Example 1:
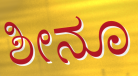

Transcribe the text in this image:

ಶೀನೂ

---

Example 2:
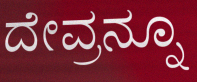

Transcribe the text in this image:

ದೇವ್ರನ್ನೂ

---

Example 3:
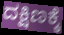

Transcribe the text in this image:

ದಕ್ಷಿಣಕ್ಕೆ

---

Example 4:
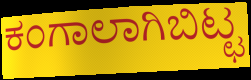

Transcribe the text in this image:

ಕಂಗಾಲಾಗಿಬಿಟ್ಟ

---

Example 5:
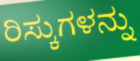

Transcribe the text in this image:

ರಿಸ್ಕುಗಳನ್ನು